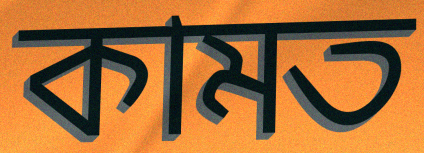
কামত